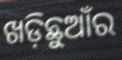
ଖଡ଼ିଛୁଆଁର